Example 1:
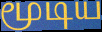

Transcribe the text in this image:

மூடிய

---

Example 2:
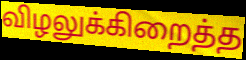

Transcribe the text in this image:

விழலுக்கிறைத்த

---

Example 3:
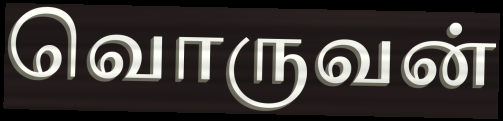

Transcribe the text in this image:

வொருவன்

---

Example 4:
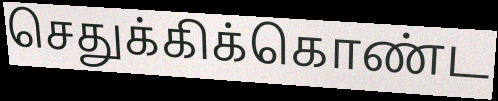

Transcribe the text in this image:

செதுக்கிக்கொண்ட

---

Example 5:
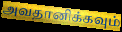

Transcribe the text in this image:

அவதானிக்கவும்